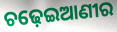
ଚଢ଼େଇଆଣୀର